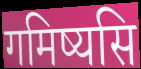
गमिष्यसि